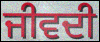
ਜੀਵਦੀ